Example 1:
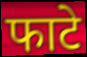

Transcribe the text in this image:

फाटे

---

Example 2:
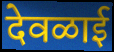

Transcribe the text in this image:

देवळाई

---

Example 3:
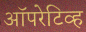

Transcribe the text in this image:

ऑपरेटिव्ह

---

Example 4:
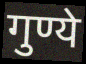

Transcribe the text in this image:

गुण्ये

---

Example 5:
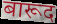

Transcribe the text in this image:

बारूद